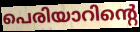
പെരിയാറിന്റെ